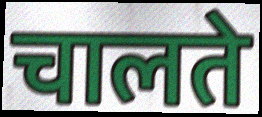
चालते